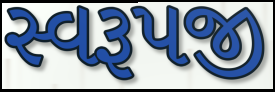
સ્વરૂપજી